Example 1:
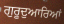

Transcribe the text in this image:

ਗੁਰੂਦੁਆਰਿਆਂ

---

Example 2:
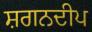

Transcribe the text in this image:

ਸ਼ਗਨਦੀਪ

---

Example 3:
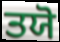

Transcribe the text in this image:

ਤਯੋ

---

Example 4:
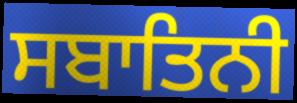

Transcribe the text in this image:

ਸਬਾਤਿਨੀ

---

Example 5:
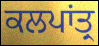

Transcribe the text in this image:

ਕਲਪਾਂਤ੍ਰ